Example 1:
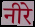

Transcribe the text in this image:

नीरे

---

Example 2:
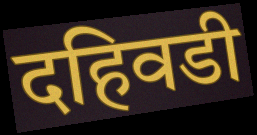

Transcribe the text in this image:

दहिवडी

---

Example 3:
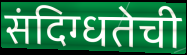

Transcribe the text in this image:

संदिग्धतेची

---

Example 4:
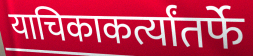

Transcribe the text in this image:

याचिकाकर्त्यांतर्फे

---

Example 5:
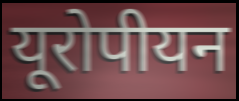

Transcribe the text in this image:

यूरोपीयन